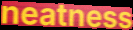
neatness